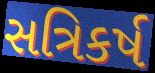
સત્રિકર્ષ